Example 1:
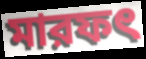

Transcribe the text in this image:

মারফৎ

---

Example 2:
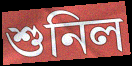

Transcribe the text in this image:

শুনিল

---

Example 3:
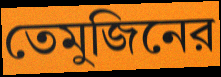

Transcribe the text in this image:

তেমুজিনের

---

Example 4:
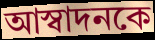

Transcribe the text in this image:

আস্বাদনকে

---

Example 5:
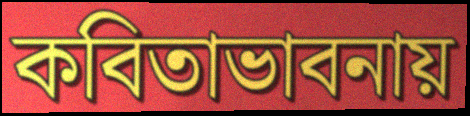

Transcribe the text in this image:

কবিতাভাবনায়